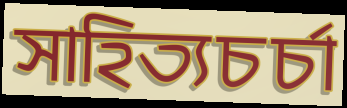
সাহিত্যচর্চা